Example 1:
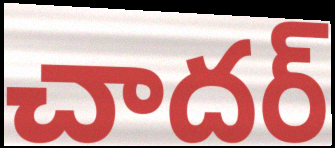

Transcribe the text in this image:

చాదర్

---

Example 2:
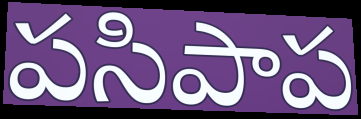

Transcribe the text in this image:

పసిపాప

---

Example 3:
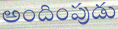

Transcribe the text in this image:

అందింపుడు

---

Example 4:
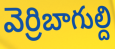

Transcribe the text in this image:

వెర్రిబాగుల్ది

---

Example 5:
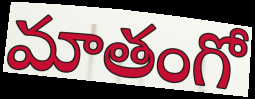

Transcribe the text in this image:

మాతంగో